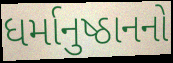
ધર્માનુષ્ઠાનનો